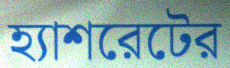
হ্যাশরেটের